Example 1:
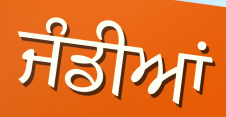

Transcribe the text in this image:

ਜੰਡੀਆਂ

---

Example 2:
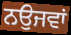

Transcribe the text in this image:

ਨਉਜਵਾਂ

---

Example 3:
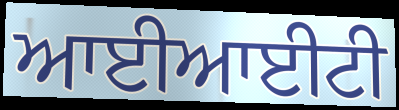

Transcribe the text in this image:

ਆਈਆਈਟੀ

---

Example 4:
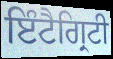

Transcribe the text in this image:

ਇੰਟੈਗ੍ਰਿਟੀ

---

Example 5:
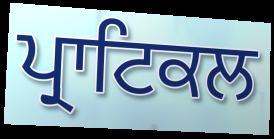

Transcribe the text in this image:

ਪ੍ਰਾਟਿਕਲ